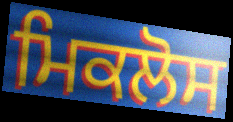
ਮਿਕਲੋਸ